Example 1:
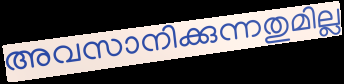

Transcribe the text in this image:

അവസാനിക്കുന്നതുമില്ല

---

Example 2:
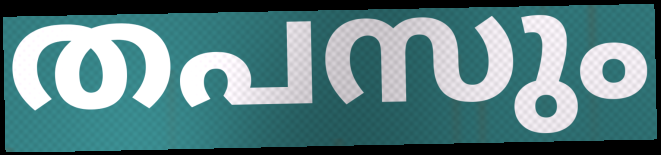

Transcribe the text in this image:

തപസും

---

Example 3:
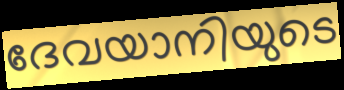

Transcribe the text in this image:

ദേവയാനിയുടെ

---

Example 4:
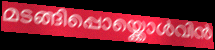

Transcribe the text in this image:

മടങ്ങിപ്പൊയ്ക്കൊൾവിൻ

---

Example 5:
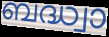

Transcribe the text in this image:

ബദ്ധ്വാ